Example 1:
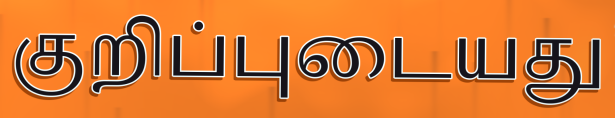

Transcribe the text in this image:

குறிப்புடையது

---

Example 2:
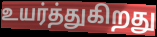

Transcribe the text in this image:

உயர்த்துகிறது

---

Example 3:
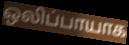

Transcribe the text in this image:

ஒலிப்பாயாக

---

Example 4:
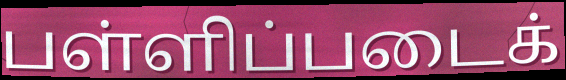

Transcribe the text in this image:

பள்ளிப்படைக்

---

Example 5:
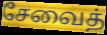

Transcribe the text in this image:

சேவைத்